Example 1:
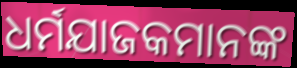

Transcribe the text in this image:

ଧର୍ମଯାଜକମାନଙ୍କ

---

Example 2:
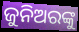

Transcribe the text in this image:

ଜୁନିଅରଙ୍କୁ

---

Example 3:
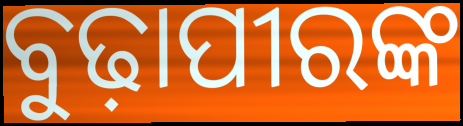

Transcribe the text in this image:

ବୁଢ଼ାପୀରଙ୍କ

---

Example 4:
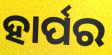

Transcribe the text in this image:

ହାର୍ପର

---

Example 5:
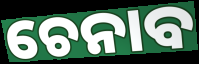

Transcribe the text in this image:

ଚେନାବ